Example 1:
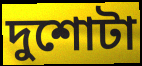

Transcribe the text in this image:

দুশোটা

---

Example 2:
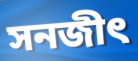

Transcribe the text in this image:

সনজীৎ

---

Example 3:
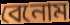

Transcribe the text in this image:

বেনোম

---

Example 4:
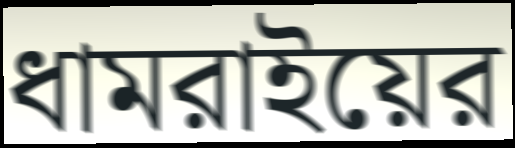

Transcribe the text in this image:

ধামরাইয়ের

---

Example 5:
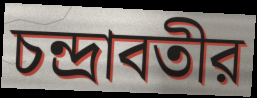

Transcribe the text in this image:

চন্দ্রাবতীর